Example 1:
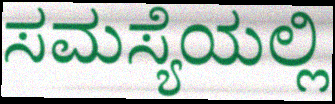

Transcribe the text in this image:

ಸಮಸ್ಯೆಯಲ್ಲಿ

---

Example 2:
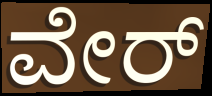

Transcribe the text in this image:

ವೇರ್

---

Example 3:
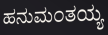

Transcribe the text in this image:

ಹನುಮಂತಯ್ಯ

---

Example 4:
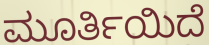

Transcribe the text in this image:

ಮೂರ್ತಿಯಿದೆ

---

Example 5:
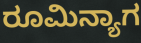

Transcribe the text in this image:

ರೂಮಿನ್ಯಾಗ